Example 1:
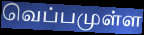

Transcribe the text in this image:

வெப்பமுள்ள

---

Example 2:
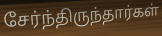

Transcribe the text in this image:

சேர்ந்திருந்தார்கள்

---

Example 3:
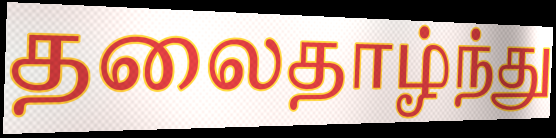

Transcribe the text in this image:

தலைதாழ்ந்து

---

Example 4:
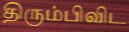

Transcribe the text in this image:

திரும்பிவிட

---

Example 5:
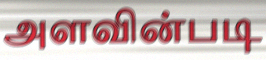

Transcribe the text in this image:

அளவின்படி